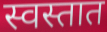
स्वस्तात